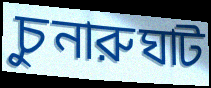
চুনারুঘাট